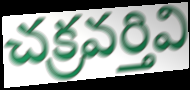
చక్రవర్తివి